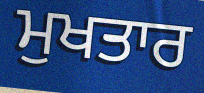
ਮੁਖਤਾਰ